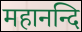
महानन्दि